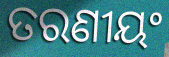
ତରଣୀୟଂ